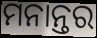
ମନାନ୍ତର